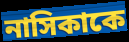
নাসিকাকে